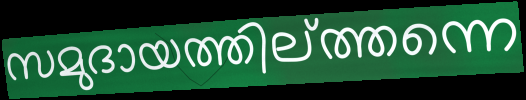
സമുദായത്തില്ത്തന്നെ